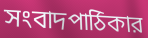
সংবাদপাঠিকার